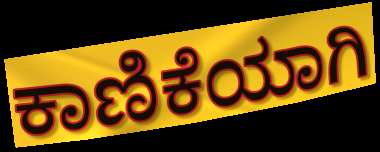
ಕಾಣಿಕೆಯಾಗಿ